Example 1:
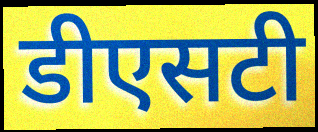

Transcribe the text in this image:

डीएसटी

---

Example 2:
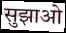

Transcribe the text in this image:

सुझाओ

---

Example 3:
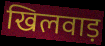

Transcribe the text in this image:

खिलवाड़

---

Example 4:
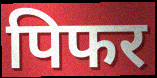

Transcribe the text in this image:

पिफर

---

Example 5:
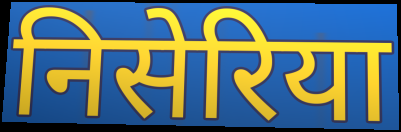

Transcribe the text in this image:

निसेरिया